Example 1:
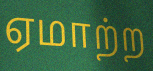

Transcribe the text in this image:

ஏமாற்ற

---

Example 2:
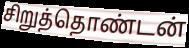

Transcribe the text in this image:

சிறுத்தொண்டன்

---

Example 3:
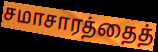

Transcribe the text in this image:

சமாசாரத்தைத்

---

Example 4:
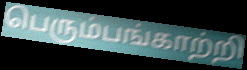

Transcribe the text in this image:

பெரும்பங்காற்றி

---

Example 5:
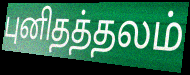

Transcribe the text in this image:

புனிதத்தலம்